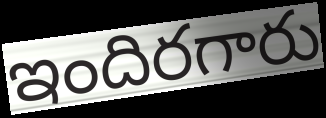
ఇందిరగారు